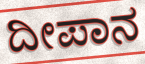
ದೀಪಾನ